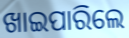
ଖାଇପାରିଲେ